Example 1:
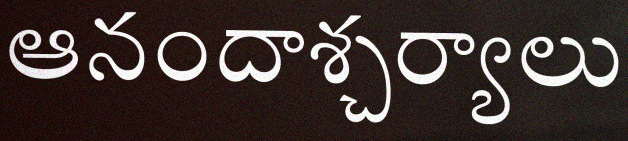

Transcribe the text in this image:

ఆనందాశ్చర్యాలు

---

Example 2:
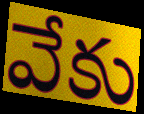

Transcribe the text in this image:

వేకు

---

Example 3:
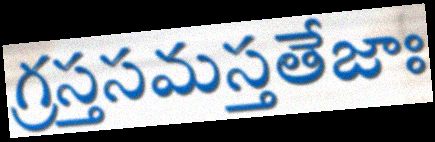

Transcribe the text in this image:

గ్రస్తసమస్తతేజాః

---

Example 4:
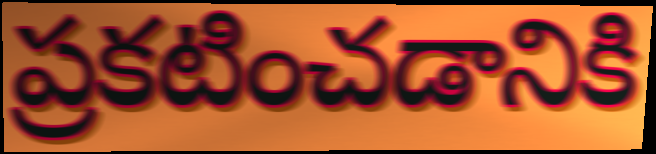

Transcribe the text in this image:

ప్రకటించడానికి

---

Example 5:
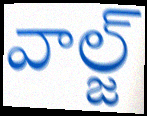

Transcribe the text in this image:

వాల్జ్